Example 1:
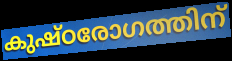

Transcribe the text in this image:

കുഷ്ഠരോഗത്തിന്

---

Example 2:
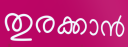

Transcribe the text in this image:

തുരക്കാൻ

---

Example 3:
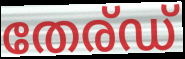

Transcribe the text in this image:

തേര്ഡ്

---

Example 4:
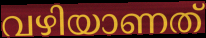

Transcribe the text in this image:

വഴിയാണത്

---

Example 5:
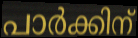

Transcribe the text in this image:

പാർക്കിന്